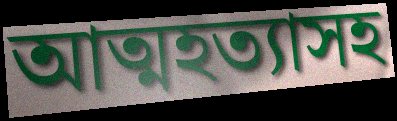
আত্মহত্যাসহ